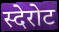
स्देरोट